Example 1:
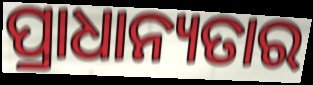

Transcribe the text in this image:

ପ୍ରାଧାନ୍ୟତାର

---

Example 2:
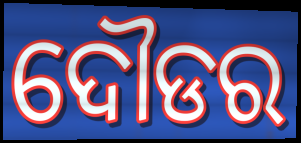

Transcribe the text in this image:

ଦୌଡର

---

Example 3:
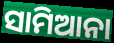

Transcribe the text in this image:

ସାମିଆନା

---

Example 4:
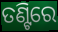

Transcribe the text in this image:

ତଣ୍ଟିରେ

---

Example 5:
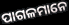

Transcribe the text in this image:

ପାଗଳମାନେ